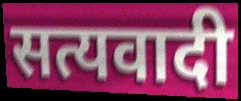
सत्यवादी